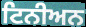
ਟਿਨੀਅਨ